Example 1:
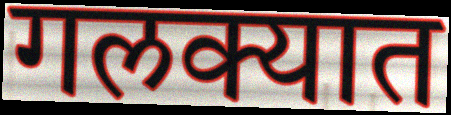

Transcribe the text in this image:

गलक्यात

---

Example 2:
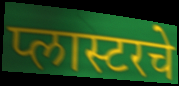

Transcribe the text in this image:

प्लास्टरचे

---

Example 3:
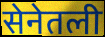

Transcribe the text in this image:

सेनेतली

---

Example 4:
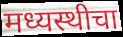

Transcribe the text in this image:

मध्यस्थीचा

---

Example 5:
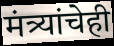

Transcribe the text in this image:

मंत्र्यांचेही